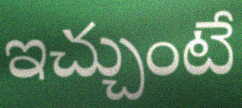
ఇచ్చుంటే